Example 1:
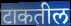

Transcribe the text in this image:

टाकतील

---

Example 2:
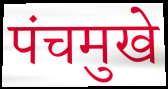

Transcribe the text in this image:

पंचमुखे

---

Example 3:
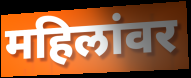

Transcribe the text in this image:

महिलांवर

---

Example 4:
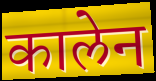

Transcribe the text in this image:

कालेन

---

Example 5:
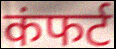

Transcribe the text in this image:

कंफर्ट